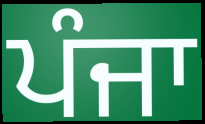
ਪੰਜਾ